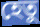
হেতু